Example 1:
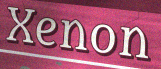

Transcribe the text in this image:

Xenon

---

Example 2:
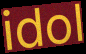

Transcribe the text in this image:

idol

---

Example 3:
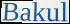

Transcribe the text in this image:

Bakul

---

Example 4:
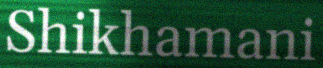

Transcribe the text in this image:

Shikhamani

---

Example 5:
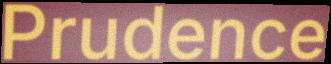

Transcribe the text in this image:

Prudence